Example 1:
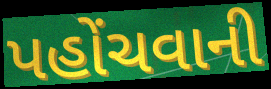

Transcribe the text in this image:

પહોંચવાની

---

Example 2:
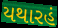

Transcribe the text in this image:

યથારહં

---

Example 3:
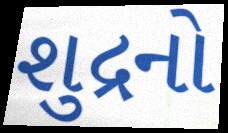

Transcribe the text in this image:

શુદ્રનો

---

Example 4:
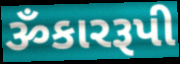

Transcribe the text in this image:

ૐકારરૂપી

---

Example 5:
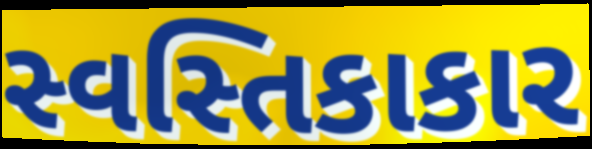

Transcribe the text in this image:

સ્વસ્તિકાકાર